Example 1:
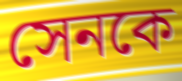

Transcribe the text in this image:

সেনকে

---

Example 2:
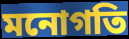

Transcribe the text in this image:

মনোগতি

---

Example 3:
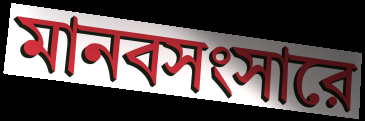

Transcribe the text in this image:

মানবসংসারে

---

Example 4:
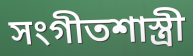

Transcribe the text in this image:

সংগীতশাস্ত্রী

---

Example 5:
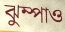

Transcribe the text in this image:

ঝুম্পাও